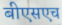
बीएसएच